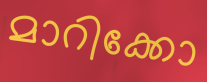
മാറിക്കോ